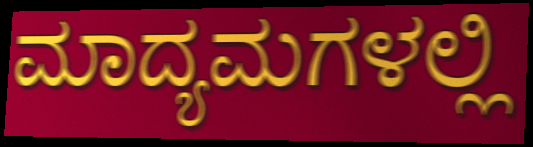
ಮಾದ್ಯಮಗಳಲ್ಲಿ